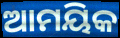
ଆମୟିକ